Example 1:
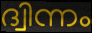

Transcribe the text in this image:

ദ്വിന്നം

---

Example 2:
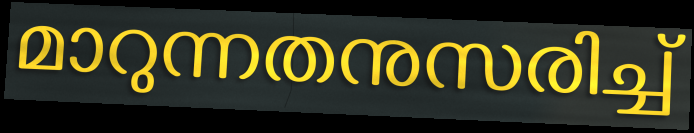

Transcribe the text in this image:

മാറുന്നതനുസരിച്ച്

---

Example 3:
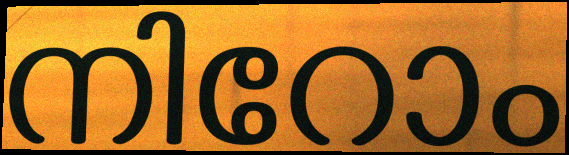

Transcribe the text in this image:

നിറോം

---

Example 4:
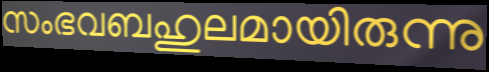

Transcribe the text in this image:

സംഭവബഹുലമായിരുന്നു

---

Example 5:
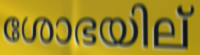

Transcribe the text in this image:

ശോഭയില്